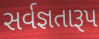
સર્વજ્ઞતારૂપ